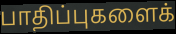
பாதிப்புகளைக்